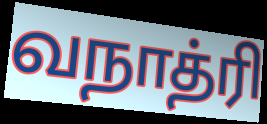
வநாத்ரி